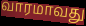
வாரமாவது